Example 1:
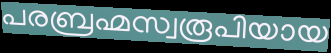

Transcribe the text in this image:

പരബ്രഹ്മസ്വരൂപിയായ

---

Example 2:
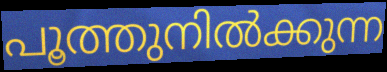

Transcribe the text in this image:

പൂത്തുനിൽക്കുന്ന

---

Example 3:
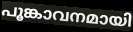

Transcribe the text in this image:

പൂങ്കാവനമായി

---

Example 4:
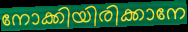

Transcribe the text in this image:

നോക്കിയിരിക്കാനേ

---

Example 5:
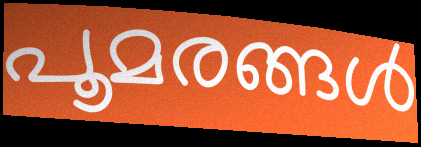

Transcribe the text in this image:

പൂമരങ്ങൾ